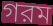
গরম